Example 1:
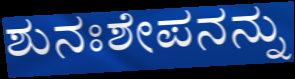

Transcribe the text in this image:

ಶುನಃಶೇಪನನ್ನು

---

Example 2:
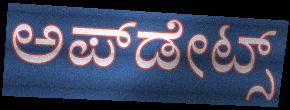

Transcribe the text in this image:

ಅಪ್‌ಡೇಟ್ಸ್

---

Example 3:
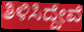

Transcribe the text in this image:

ತಿಳಿಸಿದ್ದೇವೆ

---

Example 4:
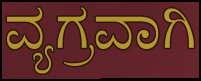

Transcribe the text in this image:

ವ್ಯಗ್ರವಾಗಿ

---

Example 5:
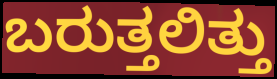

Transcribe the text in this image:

ಬರುತ್ತಲಿತ್ತು